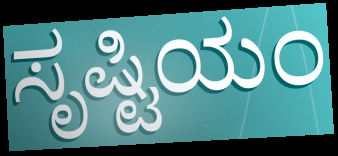
ಸೃಷ್ಟಿಯಂ